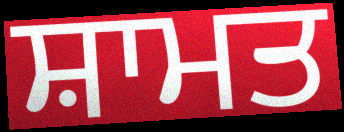
ਸ਼ਾਮਤ